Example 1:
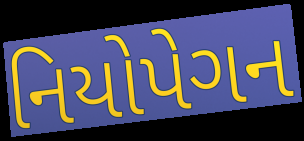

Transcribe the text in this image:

નિયોપેગન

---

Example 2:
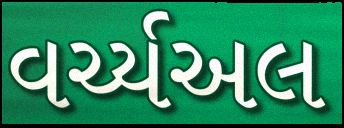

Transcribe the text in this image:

વર્ચ્યઅલ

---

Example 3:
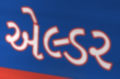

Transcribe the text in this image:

એલ્ડર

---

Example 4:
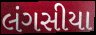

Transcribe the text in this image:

લંગસીયા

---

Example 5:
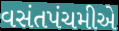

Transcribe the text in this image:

વસંતપંચમીએ